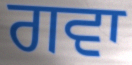
ਗਵਾ